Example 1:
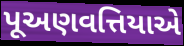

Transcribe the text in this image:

પૂઅણવત્તિયાએ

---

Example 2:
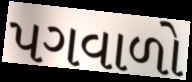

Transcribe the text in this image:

પગવાળો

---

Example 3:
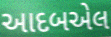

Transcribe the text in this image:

આદબએલ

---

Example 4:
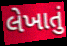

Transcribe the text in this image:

લેખાતું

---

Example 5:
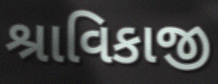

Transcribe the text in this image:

શ્રાવિકાજી